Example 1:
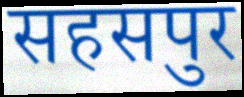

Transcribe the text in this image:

सहसपुर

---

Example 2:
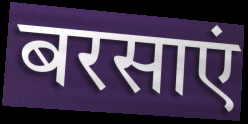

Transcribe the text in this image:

बरसाएं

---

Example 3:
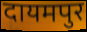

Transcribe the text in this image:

दायमपुर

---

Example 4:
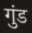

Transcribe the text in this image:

गुंड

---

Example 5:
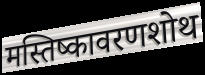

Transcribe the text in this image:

मस्तिष्कावरणशोथ